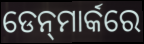
ଡେନ୍‍ମାର୍କରେ